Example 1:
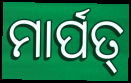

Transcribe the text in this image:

ମାର୍ପତ୍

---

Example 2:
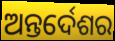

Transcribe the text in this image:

ଅନ୍ତର୍ଦେଶର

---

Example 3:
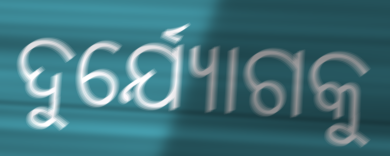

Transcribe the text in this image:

ଦୁର୍ଯ୍ୟୋଗକୁ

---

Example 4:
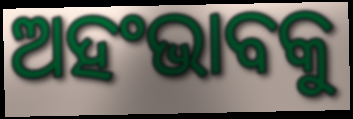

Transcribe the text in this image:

ଅହଂଭାବକୁ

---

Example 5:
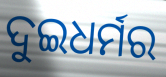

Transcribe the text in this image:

ଦୁଇଧର୍ମର